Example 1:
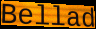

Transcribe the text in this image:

Bellad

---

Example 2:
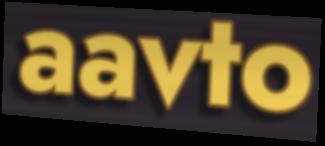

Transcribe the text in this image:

aavto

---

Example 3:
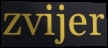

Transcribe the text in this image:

zvijer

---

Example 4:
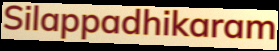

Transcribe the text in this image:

Silappadhikaram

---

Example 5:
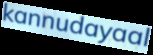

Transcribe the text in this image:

kannudayaal